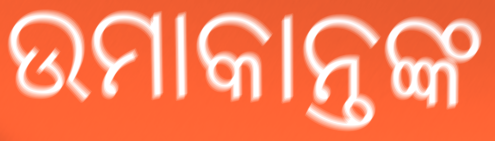
ଉମାକାନ୍ତଙ୍କ